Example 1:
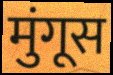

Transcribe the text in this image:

मुंगूस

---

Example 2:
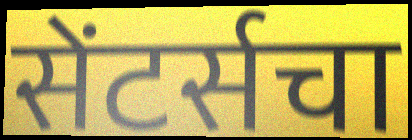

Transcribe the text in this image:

सेंटर्सचा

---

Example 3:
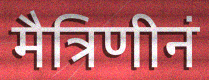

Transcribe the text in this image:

मैत्रिणीनं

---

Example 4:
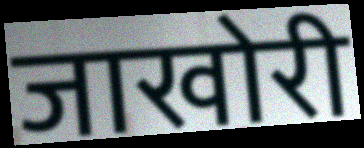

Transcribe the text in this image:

जाखोरी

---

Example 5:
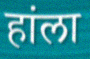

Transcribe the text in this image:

हांला